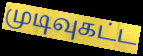
முடிவுகட்ட